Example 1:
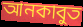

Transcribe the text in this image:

আনকাবুত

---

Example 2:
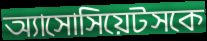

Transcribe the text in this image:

অ্যাসোসিয়েটসকে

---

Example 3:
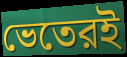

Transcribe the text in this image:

ভেতেরই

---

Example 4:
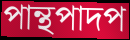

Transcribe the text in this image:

পান্থপাদপ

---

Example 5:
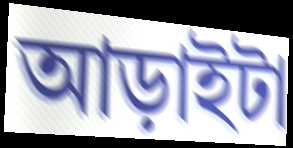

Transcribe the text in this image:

আড়াইটা